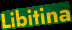
Libitina